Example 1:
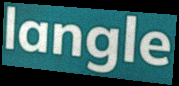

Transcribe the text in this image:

langle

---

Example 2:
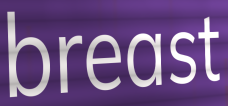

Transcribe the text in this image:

breast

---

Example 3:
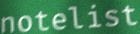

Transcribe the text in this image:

notelist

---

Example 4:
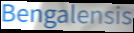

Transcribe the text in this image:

Bengalensis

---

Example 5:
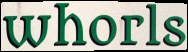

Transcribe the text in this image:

whorls